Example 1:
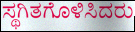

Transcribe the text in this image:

ಸ್ಥಗಿತಗೊಳಿಸಿದರು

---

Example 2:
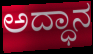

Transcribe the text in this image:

ಅದ್ಧಾನ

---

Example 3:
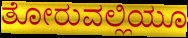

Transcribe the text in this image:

ತೋರುವಲ್ಲಿಯೂ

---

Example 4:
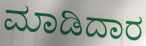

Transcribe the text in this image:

ಮಾಡಿದಾರ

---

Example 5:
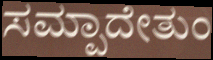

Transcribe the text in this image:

ಸಮ್ಪಾದೇತುಂ